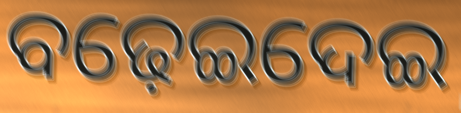
ବଢ଼େଇଦେଇ